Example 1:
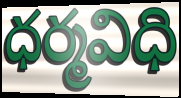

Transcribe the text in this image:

ధర్మవిధి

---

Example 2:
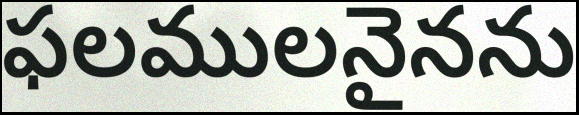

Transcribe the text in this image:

ఫలములనైనను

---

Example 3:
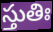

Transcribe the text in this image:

స్తుతిః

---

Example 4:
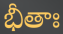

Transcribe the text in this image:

భీతాః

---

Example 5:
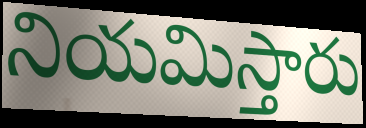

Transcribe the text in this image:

నియమిస్తారు